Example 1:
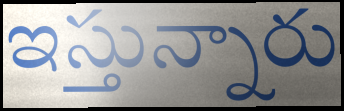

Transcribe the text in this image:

ఇస్తున్నారు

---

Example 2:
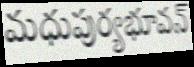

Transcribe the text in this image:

మధుపుర్యభూవన్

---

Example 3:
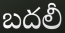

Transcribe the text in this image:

బదలీ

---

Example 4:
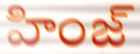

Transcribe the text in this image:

హింజ్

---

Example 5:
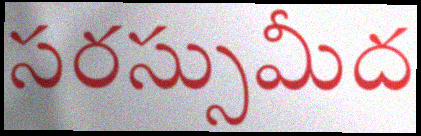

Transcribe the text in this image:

సరస్సుమీద